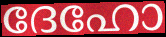
ദേഹോ